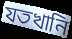
যতখানি